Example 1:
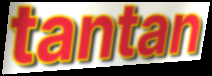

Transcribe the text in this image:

tantan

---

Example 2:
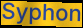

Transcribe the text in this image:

Syphon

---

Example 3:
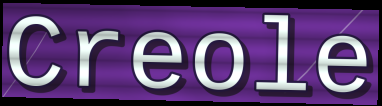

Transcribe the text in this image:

Creole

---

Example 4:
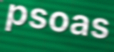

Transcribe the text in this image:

psoas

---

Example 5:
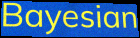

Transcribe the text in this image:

Bayesian